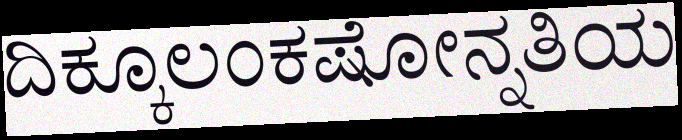
ದಿಕ್ಕೂಲಂಕಷೋನ್ನತಿಯ